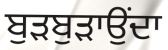
ਬੁੜਬੁੜਾਉਂਦਾ